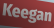
Keegan